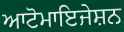
ਆਟੋਮਾਇਜੇਸ਼ਨ